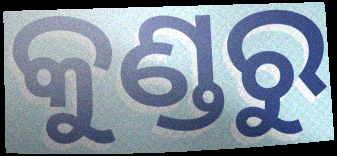
କୁଣ୍ଡରୁ